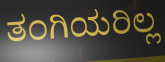
ತಂಗಿಯರಿಲ್ಲ